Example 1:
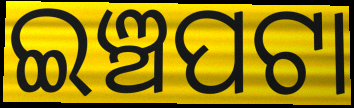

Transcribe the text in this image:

ଇଞ୍ଚପଟା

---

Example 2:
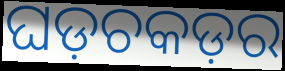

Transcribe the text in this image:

ଘଡ଼ଚକଡ଼ର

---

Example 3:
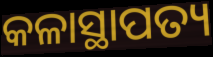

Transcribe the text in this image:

କଳାସ୍ଥାପତ୍ୟ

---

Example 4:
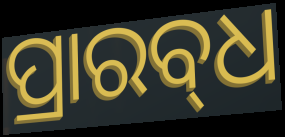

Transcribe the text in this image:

ପ୍ରାରବ୍‍ଧ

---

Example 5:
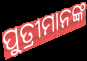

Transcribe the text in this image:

ପୁତ୍ରୀମାନଙ୍କ